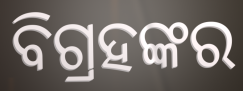
ବିଗ୍ରହଙ୍କର